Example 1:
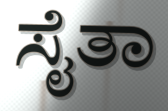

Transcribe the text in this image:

ಸೈತಾ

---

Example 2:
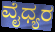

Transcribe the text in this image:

ವೈಧ್ಯರ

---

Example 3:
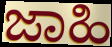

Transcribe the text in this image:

ಜಾಹಿ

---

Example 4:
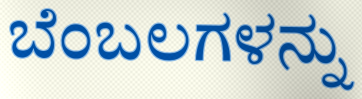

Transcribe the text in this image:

ಬೆಂಬಲಗಳನ್ನು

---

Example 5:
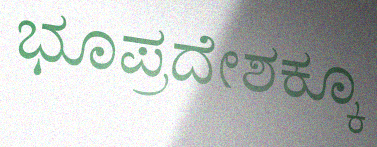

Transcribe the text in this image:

ಭೂಪ್ರದೇಶಕ್ಕೂ